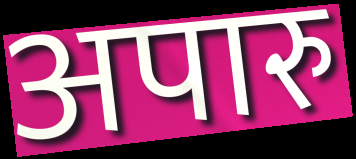
अपारु